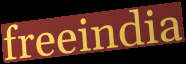
freeindia